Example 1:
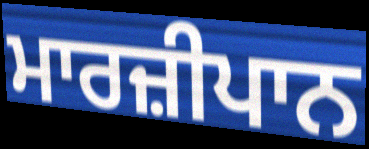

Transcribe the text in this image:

ਮਾਰਜ਼ੀਪਾਨ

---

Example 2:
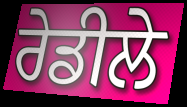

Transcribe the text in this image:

ਰੇਡੀਲੇ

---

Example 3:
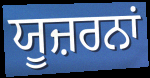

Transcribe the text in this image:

ਯੂਜ਼ਰਨਾਂ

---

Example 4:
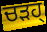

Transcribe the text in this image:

ਚੜਹ੍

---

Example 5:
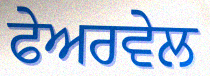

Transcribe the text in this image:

ਫੇਅਰਵੇਲ